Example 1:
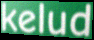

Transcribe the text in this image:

kelud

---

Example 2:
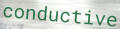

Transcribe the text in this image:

conductive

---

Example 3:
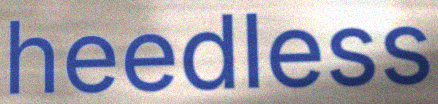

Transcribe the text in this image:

heedless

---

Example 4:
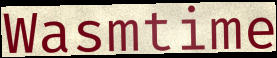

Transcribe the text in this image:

Wasmtime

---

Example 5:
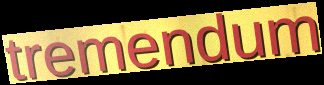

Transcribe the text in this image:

tremendum